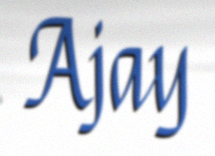
Ajay